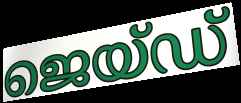
ജെയ്ഡ്